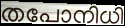
തപോനിധി